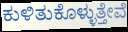
ಕುಳಿತುಕೊಳ್ಳುತ್ತೇವೆ